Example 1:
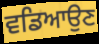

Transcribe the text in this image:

ਵਡਿਆਉਣ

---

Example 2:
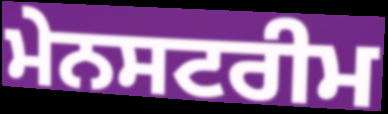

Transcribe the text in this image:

ਮੇਨਸਟਰੀਮ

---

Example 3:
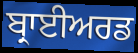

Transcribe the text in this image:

ਬ੍ਰਾਈਅਰਡ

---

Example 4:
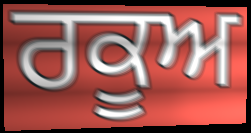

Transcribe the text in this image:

ਰਕੂਅ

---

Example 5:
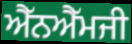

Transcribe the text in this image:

ਐੱਨਐੱਮਜੀ